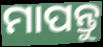
ମାପନ୍ତୁ